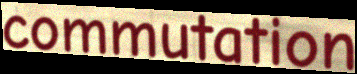
commutation